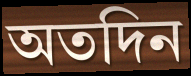
অতদিন